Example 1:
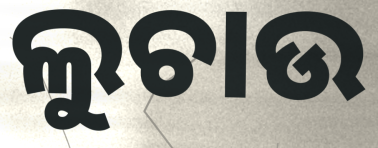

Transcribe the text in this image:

ଲୁଚାଉ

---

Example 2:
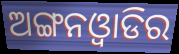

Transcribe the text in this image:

ଅଙ୍ଗନଓ୍ବାଡିର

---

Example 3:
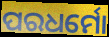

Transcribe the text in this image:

ପରଧର୍ମୋ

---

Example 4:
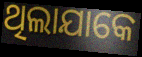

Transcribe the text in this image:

ଥିଲାଯାକେ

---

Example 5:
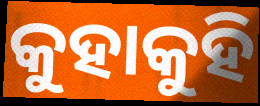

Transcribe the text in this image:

କୁହାକୁହି